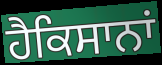
ਹੈਕਿਸਾਨਾਂ